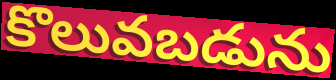
కొలువబడును